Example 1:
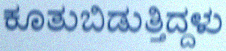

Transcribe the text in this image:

ಕೂತುಬಿಡುತ್ತಿದ್ದಳು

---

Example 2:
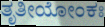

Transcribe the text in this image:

ತೃತೀಯೋಂಕಃ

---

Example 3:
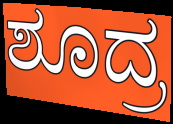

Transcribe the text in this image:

ಶೂದ್ರ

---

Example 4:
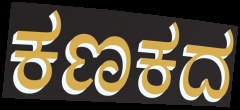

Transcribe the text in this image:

ಕಣಕದ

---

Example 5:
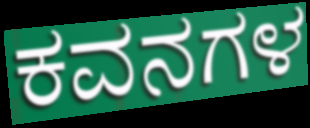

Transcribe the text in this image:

ಕವನಗಳ